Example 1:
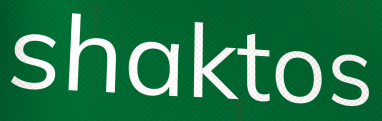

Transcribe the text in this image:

shaktos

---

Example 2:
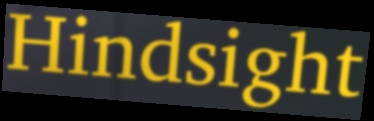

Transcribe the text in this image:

Hindsight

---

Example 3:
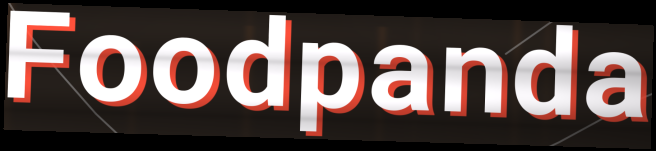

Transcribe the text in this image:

Foodpanda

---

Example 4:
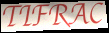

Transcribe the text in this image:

TIFRAC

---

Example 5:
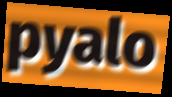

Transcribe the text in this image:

pyalo